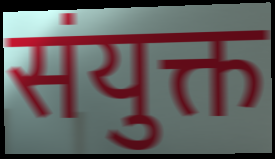
संयुक्त